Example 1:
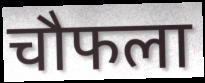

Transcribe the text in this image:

चौफला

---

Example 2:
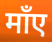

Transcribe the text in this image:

माँए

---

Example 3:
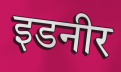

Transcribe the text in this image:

इडनीर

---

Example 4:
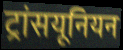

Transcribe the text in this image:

ट्रांसयूनियन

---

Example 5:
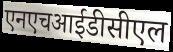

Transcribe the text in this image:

एनएचआईडीसीएल